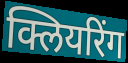
क्लियरिंग